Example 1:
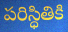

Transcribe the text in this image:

పరిస్ధితికి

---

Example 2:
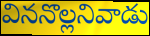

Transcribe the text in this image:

విననొల్లనివాడు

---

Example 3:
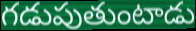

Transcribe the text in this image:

గడుపుతుంటాడు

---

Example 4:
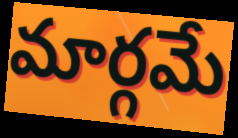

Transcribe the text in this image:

మార్గమే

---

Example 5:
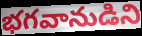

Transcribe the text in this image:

భగవానుడిని